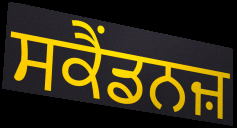
ਸਕੈਂਡਨਜ਼